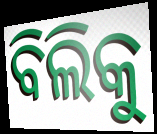
ବିଲିକୁ